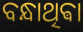
ବନ୍ଧାଥିଵା